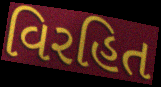
વિરહિત